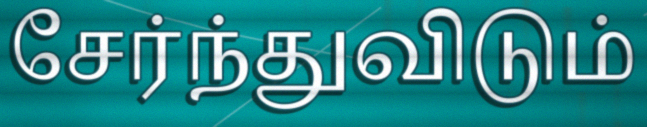
சேர்ந்துவிடும்